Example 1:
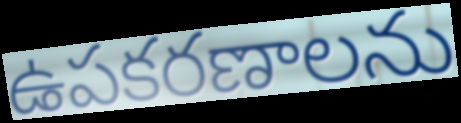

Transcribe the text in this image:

ఉపకరణాలను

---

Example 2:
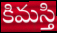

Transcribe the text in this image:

కిమస్తి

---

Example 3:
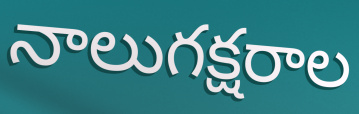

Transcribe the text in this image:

నాలుగక్షరాల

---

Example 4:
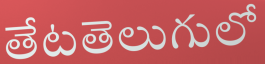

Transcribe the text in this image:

తేటతెలుగులో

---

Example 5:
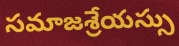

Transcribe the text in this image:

సమాజశ్రేయస్సు